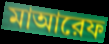
মাআরেফ